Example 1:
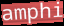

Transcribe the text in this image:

amphi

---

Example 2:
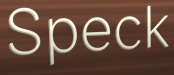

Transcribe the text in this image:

Speck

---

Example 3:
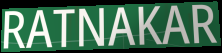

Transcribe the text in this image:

RATNAKAR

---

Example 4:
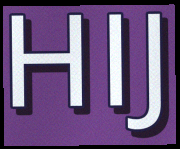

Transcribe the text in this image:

HIJ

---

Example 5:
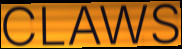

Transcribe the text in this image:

CLAWS